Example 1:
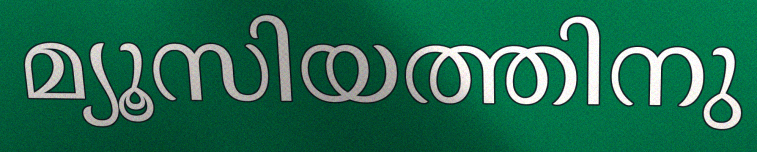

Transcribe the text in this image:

മ്യൂസിയത്തിനു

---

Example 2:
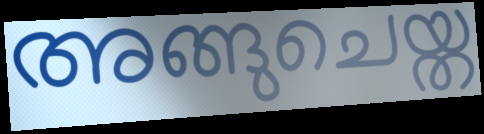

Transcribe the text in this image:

അങ്ങുചെയ്ത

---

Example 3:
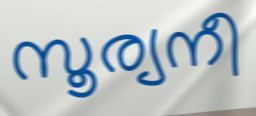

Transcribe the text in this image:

സൂര്യനീ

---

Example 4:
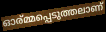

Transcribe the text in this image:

ഓര്മ്മപ്പെടുത്തലാണ്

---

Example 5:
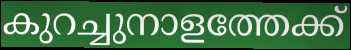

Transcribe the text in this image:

കുറച്ചുനാളത്തേക്ക്